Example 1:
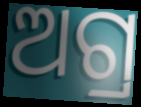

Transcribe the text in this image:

ଅଗ୍ର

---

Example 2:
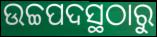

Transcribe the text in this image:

ଉଚ୍ଚପଦସ୍ଥଠାରୁ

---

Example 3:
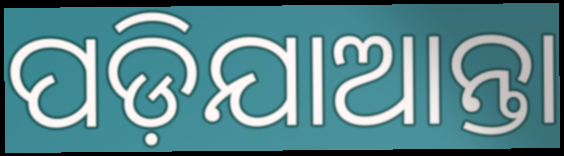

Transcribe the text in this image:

ପଡ଼ିଯାଆନ୍ତା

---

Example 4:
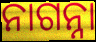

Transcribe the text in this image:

ନାଗନ୍ନା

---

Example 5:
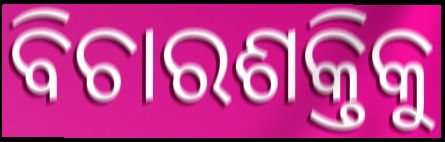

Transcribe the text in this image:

ବିଚାରଶକ୍ତିକୁ